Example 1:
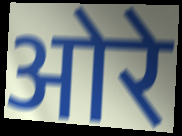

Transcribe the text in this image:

ओरे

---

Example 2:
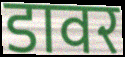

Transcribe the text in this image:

डावर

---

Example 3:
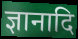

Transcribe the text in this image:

ज्ञानादि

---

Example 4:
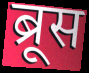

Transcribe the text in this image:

ब्रूस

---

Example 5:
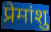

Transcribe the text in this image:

प्रेमांशु